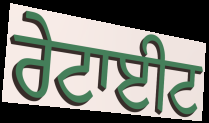
ਰੇਟਾਈਟ